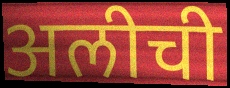
अलीची